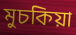
মুচকিয়া